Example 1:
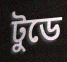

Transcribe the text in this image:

টুডে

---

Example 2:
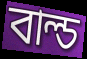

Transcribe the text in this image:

বাল্ড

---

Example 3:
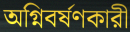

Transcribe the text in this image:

অগ্নিবর্ষণকারী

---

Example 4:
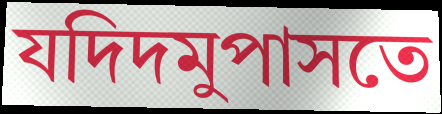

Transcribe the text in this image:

যদিদমুপাসতে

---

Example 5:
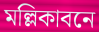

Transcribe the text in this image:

মল্লিকাবনে